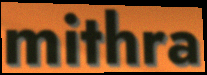
mithra